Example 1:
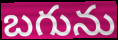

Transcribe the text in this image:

బగును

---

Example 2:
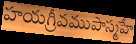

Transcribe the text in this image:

హయగ్రీవముపాస్మహే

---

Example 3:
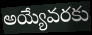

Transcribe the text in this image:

అయ్యేవరకు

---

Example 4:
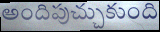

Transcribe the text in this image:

అందిపుచ్చుకుంది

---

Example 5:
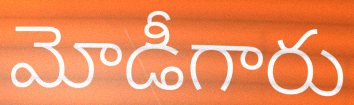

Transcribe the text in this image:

మోడీగారు